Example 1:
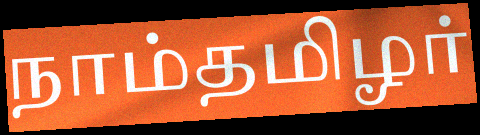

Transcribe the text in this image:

நாம்தமிழர்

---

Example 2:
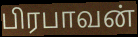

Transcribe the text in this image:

பிரபாவன்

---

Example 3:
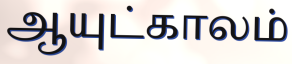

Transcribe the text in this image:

ஆயுட்காலம்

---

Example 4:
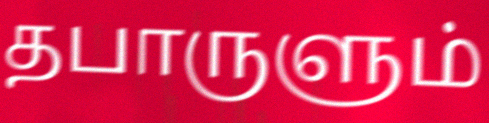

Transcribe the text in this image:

தபாருளும்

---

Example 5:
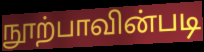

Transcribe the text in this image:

நூற்பாவின்படி